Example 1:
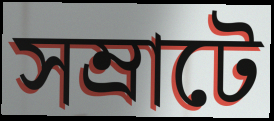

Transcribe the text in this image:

সম্ৰাটে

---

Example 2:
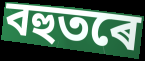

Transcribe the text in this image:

বহুতৰে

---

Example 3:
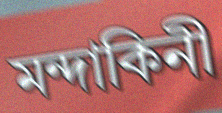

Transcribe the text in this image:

মন্দাকিনী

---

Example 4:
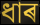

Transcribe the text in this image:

ধাৰ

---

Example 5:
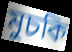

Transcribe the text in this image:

মুচকি